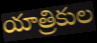
యాత్రికుల